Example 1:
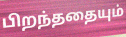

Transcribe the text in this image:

பிறந்ததையும்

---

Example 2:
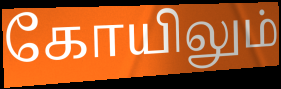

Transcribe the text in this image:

கோயிலும்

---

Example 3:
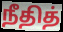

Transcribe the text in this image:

நீதித்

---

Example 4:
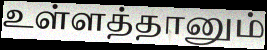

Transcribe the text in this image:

உள்ளத்தானும்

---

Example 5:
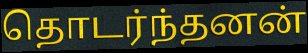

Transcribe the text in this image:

தொடர்ந்தனன்